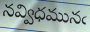
నవ్విధమునఁ